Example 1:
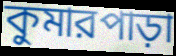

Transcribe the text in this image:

কুমারপাড়া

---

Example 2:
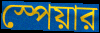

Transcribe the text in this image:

স্পেয়ার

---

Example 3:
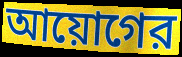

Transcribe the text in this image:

আয়োগের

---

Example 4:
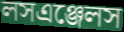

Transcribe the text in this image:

লসএঞ্জেলস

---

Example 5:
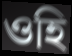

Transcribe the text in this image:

ওহি